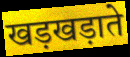
खड़खड़ाते